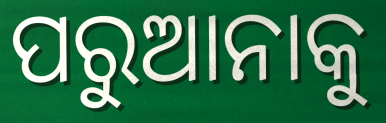
ପରୁଆନାକୁ